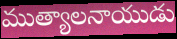
ముత్యాలనాయుడు